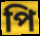
পি